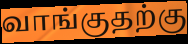
வாங்குதற்கு